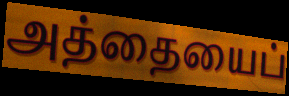
அத்தையைப்